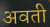
अवती